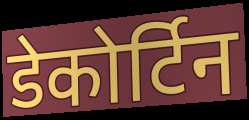
डेकोर्टिन